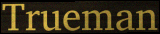
Trueman